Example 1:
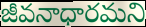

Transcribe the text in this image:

జీవనాధారమని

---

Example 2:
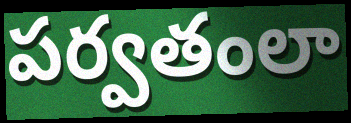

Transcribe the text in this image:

పర్వతంలా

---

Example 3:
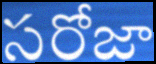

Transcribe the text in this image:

సరోజా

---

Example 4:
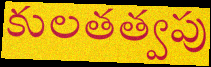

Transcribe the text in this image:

కులతత్వపు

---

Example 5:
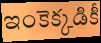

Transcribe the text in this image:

ఇంకెక్కడికీ